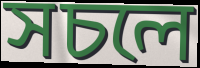
সচলে